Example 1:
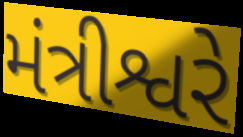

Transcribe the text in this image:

મંત્રીશ્વરે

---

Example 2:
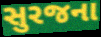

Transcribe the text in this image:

સુરજના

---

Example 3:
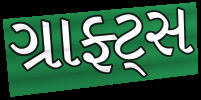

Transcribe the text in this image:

ગ્રાફ્ટ્સ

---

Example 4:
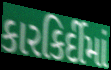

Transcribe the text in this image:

કારકિર્દીમાં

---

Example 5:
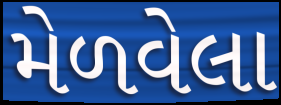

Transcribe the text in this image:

મેળવેલા